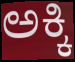
ಅಕ್ಕಿ